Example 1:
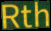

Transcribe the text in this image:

Rth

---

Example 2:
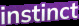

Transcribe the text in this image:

instinct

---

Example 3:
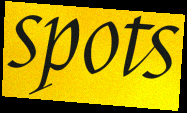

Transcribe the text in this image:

spots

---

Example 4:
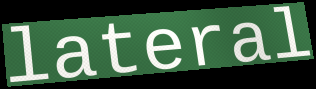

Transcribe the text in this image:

lateral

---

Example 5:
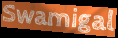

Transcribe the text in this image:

Swamigal